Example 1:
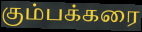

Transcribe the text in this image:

கும்பக்கரை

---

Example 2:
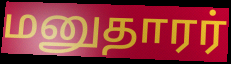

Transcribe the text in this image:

மனுதாரர்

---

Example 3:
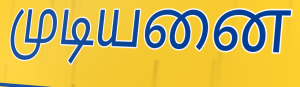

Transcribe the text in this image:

முடியனை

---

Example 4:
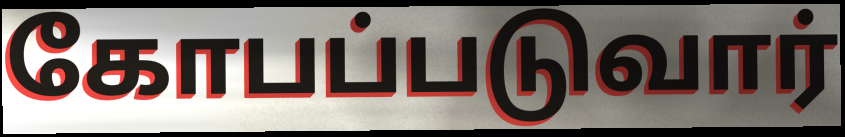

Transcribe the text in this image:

கோபப்படுவார்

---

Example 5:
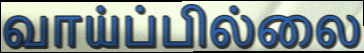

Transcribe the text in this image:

வாய்ப்பில்லை